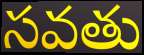
సవతు